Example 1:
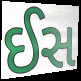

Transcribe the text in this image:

ઈસ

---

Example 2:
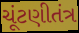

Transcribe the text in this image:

ચૂંટણીતંત્ર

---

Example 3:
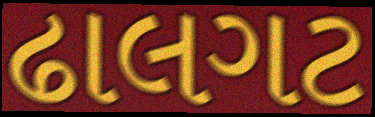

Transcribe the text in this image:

ઢાલગટ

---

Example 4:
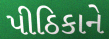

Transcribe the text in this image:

પીઠિકાને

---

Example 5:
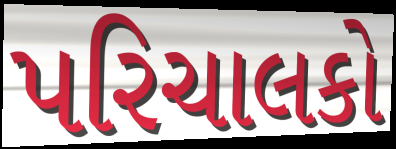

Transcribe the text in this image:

પરિચાલકો